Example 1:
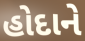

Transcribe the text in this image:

હોદાને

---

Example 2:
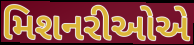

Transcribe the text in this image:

મિશનરીઓએ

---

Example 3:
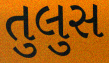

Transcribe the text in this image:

તુલુસ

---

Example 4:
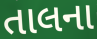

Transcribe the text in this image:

તાલના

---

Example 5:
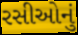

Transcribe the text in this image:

રસીઓનું